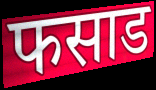
फसाड